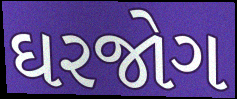
ઘરજોગ